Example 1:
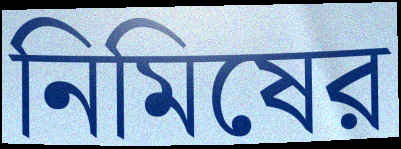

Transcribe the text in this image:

নিমিষের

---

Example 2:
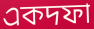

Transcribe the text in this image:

একদফা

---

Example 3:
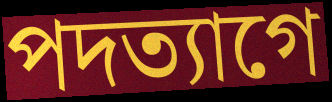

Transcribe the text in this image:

পদত্যাগে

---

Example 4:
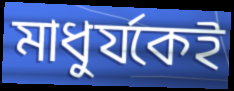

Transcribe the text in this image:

মাধুর্যকেই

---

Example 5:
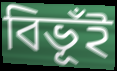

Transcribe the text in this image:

বিভূঁই